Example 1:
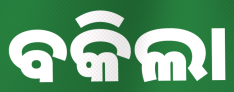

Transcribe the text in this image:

ବକିଲା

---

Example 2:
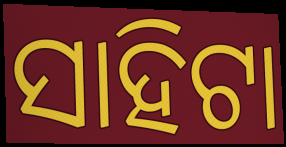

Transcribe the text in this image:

ସାହିଟା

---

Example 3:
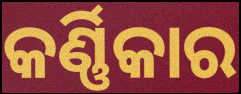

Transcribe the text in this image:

କର୍ଣ୍ଣିକାର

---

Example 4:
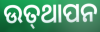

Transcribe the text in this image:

ଉତ୍‌ଥାପନ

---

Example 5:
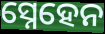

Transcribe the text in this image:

ସ୍ନେହେନ